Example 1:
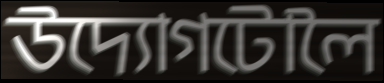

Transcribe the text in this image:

উদ্যোগটোলৈ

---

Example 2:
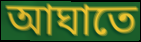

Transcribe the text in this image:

আঘাতে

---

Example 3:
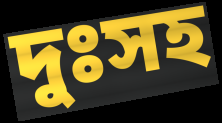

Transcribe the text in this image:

দুঃসহ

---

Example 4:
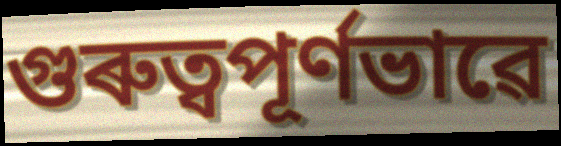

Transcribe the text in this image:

গুৰুত্বপূৰ্ণভাৱে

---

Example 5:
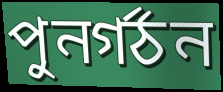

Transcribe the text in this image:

পুনৰ্গঠন